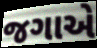
જગાએ